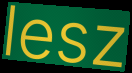
lesz